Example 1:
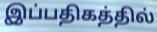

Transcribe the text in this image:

இப்பதிகத்தில்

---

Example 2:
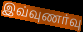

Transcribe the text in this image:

இவ்வுணர்வு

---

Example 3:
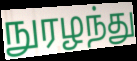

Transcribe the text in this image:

நுரழந்து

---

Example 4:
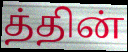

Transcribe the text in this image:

த்தின்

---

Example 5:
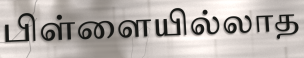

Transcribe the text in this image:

பிள்ளையில்லாத